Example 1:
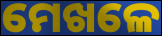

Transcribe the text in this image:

ମେଖଳେ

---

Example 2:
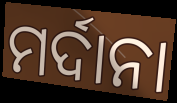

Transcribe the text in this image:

ମର୍ଦାନା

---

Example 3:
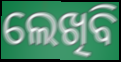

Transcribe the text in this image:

ଲେଖିବି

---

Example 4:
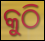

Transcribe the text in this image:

କୁଠି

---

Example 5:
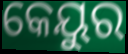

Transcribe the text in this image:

କେୟୁର